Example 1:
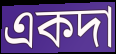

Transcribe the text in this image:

একদা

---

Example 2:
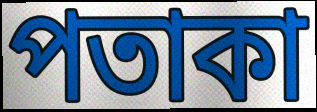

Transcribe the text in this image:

পতাকা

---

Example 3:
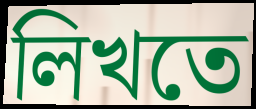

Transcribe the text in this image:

লিখতে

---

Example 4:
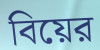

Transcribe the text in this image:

বিয়ের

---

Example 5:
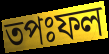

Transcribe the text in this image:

তপঃফল